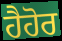
ਹੈਹੋਰ